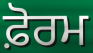
ਫ਼ੋਰਮ